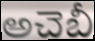
అచెబీ